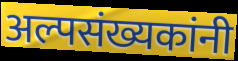
अल्पसंख्यकांनी